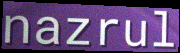
nazrul